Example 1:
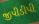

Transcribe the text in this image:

જીપીડીપી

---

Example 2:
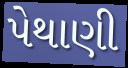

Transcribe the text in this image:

પેથાણી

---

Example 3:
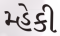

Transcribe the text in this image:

મ્હેકી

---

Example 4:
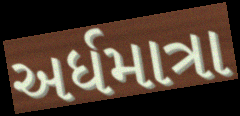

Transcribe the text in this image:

અર્ધમાત્રા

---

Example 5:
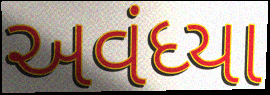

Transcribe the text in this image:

અવંધ્યા